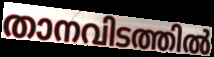
താനവിടത്തിൽ